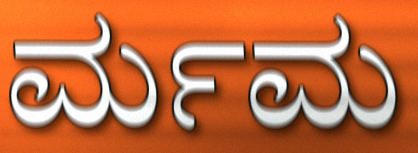
ರ್ಮಮ